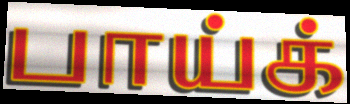
பாய்க்